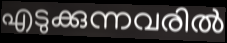
എടുക്കുന്നവരിൽ